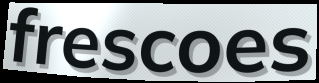
frescoes